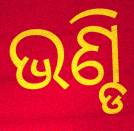
ଭଣ୍ଡି